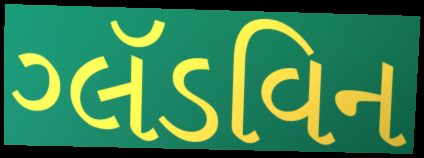
ગ્લૅડવિન